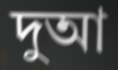
দুআ